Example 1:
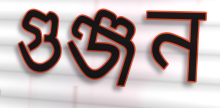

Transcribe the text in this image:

গুঞ্জন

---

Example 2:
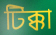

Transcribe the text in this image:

টিক্কা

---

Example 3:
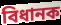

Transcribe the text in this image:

বিধানক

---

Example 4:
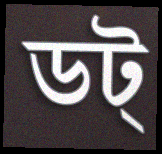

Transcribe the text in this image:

ডট্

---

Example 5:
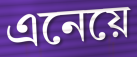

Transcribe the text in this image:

এনেয়ে